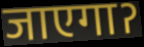
जाएगाॽ